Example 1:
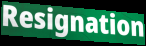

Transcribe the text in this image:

Resignation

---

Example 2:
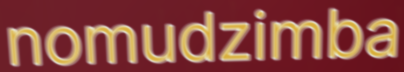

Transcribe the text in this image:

nomudzimba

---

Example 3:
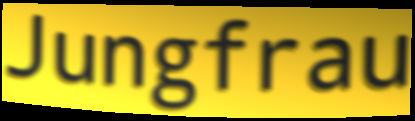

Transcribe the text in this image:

Jungfrau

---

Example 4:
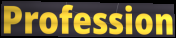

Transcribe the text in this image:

Profession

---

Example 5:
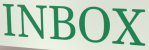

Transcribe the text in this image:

INBOX